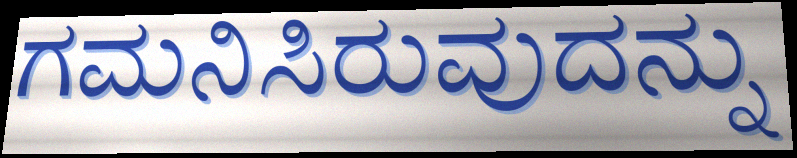
ಗಮನಿಸಿರುವುದನ್ನು